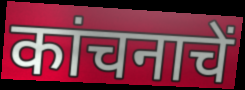
कांचनाचें